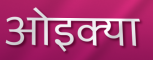
ओइक्या